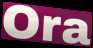
Ora